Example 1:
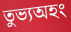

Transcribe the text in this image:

তুভ্যঅহং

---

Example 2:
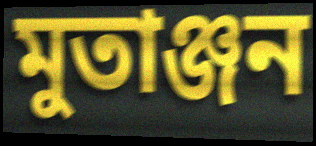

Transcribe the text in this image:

মুতাঞ্জন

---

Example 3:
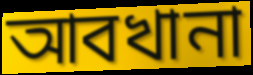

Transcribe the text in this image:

আবখানা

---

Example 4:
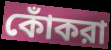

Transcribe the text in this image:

কোঁকরা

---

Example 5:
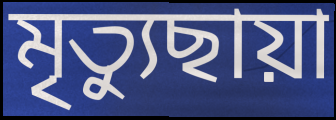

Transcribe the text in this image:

মৃত্যুছায়া